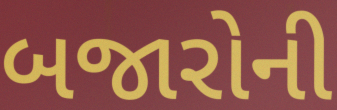
બજારોની